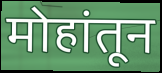
मोहांतून